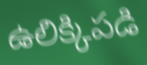
ఉలిక్కిపడి